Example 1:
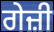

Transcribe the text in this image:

ਗੇਜ਼ੀ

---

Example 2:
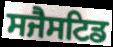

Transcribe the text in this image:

ਸਜੈਸਟਿਡ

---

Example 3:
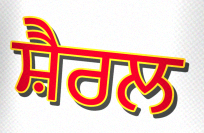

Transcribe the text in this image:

ਸ਼ੈਰਲ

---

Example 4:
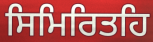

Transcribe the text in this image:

ਸਿਮਿਰਿਤਹਿ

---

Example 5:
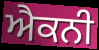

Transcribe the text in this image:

ਐਕਨੀ